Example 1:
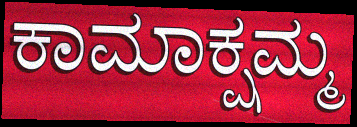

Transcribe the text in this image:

ಕಾಮಾಕ್ಷಮ್ಮ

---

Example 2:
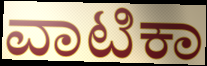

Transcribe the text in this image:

ವಾಟಿಕಾ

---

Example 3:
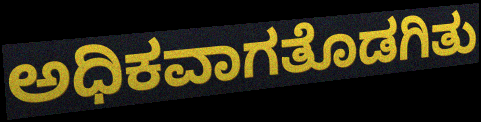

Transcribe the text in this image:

ಅಧಿಕವಾಗತೊಡಗಿತು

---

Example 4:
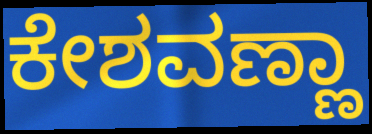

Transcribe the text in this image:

ಕೇಶವಣ್ಣಾ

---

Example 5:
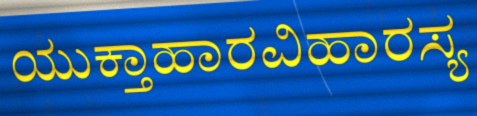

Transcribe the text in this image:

ಯುಕ್ತಾಹಾರವಿಹಾರಸ್ಯ